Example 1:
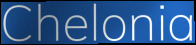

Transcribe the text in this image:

Chelonia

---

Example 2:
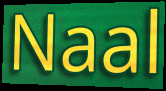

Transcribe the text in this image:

Naal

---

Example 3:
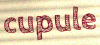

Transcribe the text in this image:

cupule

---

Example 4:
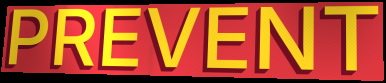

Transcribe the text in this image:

PREVENT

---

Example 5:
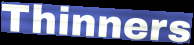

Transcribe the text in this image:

Thinners